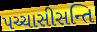
પચ્ચાસીસન્તિ